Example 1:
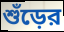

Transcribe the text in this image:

শুঁড়ের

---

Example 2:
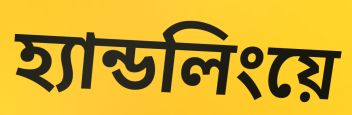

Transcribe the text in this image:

হ্যান্ডলিংয়ে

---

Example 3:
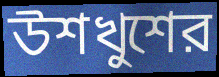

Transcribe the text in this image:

উশখুশের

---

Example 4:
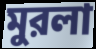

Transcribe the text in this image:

মুরলা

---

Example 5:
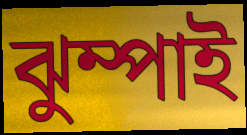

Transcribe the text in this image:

ঝুম্পাই